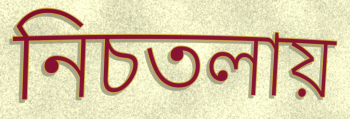
নিচতলায়